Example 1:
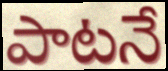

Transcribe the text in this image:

పాటనే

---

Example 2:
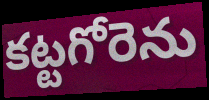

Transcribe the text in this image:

కట్టగోరెను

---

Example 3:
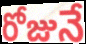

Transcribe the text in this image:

రోజునే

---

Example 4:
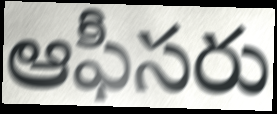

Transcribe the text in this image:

ఆఫీసరు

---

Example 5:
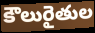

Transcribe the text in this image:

కౌలురైతుల